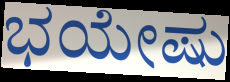
ಭಯೇಷು